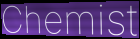
Chemist